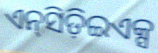
ଏନ୍‍ସିଡ଼ିଇଏକ୍ସ